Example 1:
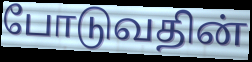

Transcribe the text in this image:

போடுவதின்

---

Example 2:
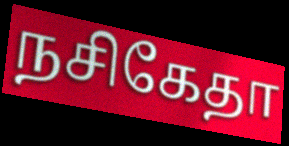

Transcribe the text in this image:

நசிகேதா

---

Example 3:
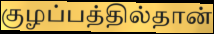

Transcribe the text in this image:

குழப்பத்தில்தான்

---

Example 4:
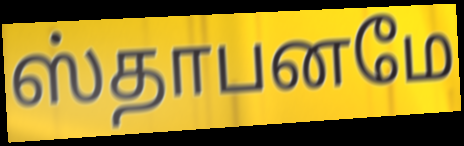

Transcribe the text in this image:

ஸ்தாபனமே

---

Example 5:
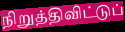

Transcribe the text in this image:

நிறுத்திவிட்டுப்